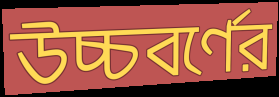
উচ্চবর্ণের